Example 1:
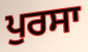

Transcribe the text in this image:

ਪੁਰਸਾ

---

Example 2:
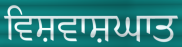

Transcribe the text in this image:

ਵਿਸ਼ਵਾਸ਼ਘਾਤ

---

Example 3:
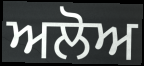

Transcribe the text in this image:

ਅਲੋਅ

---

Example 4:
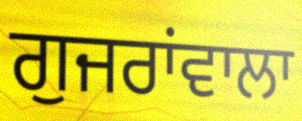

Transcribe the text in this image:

ਗੁਜਰਾਂਵਾਲਾ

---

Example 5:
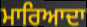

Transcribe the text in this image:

ਮਾਰਿਆਦਾ